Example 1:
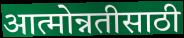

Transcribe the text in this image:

आत्मोन्नतीसाठी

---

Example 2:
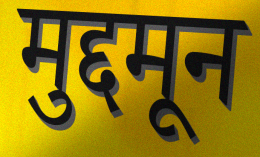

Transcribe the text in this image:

मुद्दमून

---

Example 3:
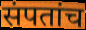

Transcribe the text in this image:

संपतांच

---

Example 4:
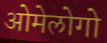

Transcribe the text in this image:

ओमेलोगो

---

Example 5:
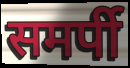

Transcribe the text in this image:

समर्पी